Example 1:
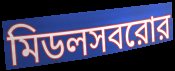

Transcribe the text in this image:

মিডলসবরোর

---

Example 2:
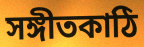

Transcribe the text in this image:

সঙ্গীতকাঠি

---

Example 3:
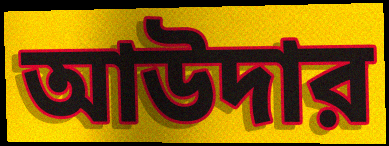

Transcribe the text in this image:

আউদার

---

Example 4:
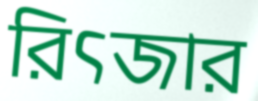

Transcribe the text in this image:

রিৎজার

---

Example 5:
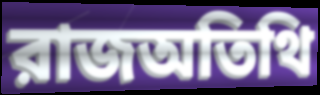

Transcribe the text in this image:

রাজঅতিথি